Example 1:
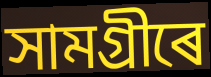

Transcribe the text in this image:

সামগ্ৰীৰে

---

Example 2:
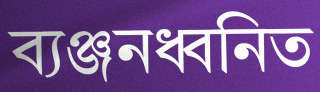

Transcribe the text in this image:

ব্যঞ্জনধ্বনিত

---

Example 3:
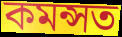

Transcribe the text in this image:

কমন্সত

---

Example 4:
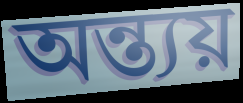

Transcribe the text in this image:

অন্ত্যয়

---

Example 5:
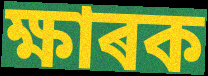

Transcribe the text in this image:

ক্ষাৰক